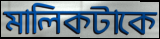
মালিকটাকে